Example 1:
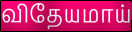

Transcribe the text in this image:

விதேயமாய்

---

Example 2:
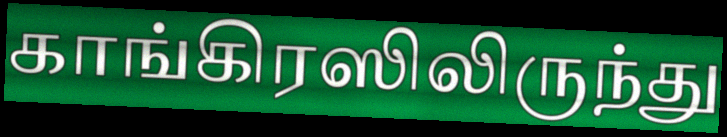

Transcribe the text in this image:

காங்கிரஸிலிருந்து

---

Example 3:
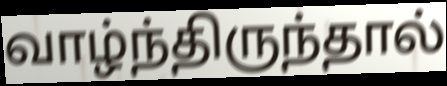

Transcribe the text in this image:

வாழ்ந்திருந்தால்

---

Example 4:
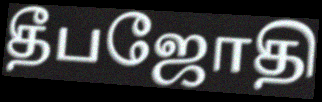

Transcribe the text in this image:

தீபஜோதி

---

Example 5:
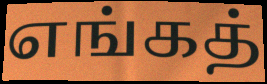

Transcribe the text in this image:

எங்கத்